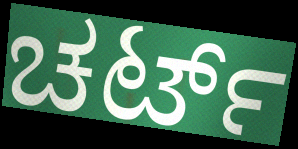
ಚರ್ಟ್